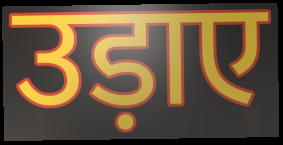
उड़ाए